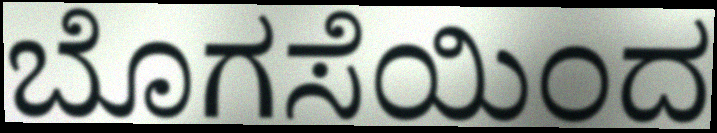
ಬೊಗಸೆಯಿಂದ